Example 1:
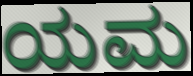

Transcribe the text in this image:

ಯಮ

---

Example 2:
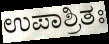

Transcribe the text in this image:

ಉಪಾಶ್ರಿತಃ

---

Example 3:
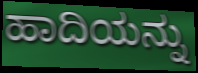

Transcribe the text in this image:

ಹಾದಿಯನ್ನು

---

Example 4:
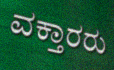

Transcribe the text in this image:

ವಕ್ತಾರರು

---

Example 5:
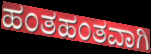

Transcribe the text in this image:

ಹಂತಹಂತವಾಗಿ